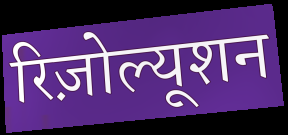
रिज़ोल्यूशन